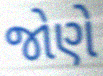
જોણે